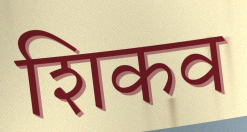
शिकव